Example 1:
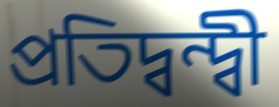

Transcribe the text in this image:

প্রতিদ্বন্দ্বী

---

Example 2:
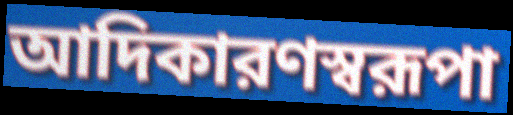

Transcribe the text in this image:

আদিকারণস্বরূপা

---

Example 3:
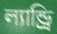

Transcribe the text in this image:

ল্যান্ড্রি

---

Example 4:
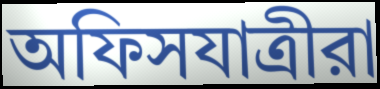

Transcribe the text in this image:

অফিসযাত্রীরা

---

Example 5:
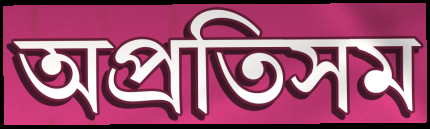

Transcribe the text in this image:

অপ্রতিসম